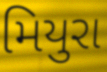
મિયુરા